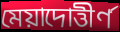
মেয়াদোত্তীর্ণ